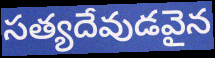
సత్యదేవుడవైన